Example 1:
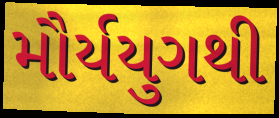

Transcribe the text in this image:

મૌર્યયુગથી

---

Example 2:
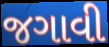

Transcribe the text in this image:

જગાવી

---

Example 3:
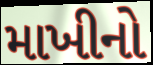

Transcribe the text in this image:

માખીનો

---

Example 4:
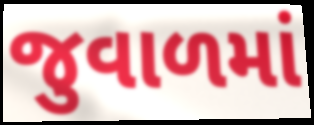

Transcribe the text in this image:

જુવાળમાં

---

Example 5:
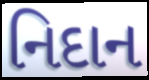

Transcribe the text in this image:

નિદાન